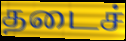
தடைச்